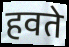
हवते